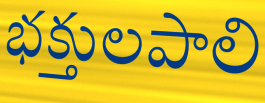
భక్తులపాలి